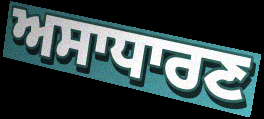
ਅਸਾਧਾਰਣ